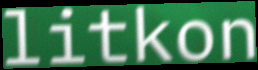
litkon